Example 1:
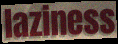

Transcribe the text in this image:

laziness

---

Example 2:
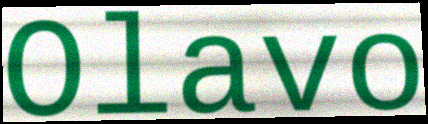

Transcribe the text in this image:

Olavo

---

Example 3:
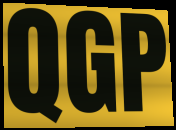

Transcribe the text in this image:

QGP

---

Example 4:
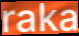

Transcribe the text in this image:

raka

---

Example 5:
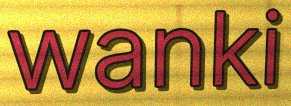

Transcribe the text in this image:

wanki